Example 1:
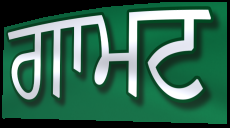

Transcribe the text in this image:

ਗਾਮਟ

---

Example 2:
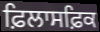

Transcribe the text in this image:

ਫ਼ਿਲਾਸਫ਼ਿਕ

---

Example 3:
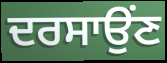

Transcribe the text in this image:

ਦਰਸਾਉਂਣ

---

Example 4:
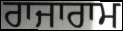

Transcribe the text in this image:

ਰਾਜਾਰਾਮ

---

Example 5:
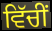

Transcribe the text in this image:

ਵਿੱਚੀਂ